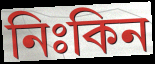
নিঃকিন